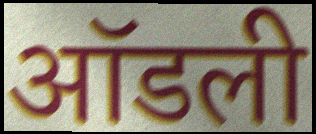
ऑडली